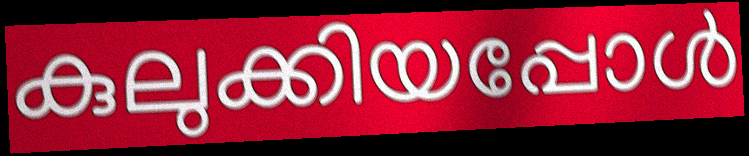
കുലുക്കിയപ്പോൾ